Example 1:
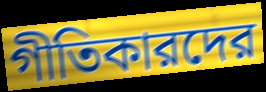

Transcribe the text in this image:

গীতিকারদের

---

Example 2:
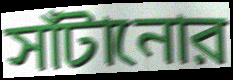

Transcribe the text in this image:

সাঁটানোর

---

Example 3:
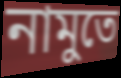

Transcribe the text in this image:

নামুতে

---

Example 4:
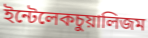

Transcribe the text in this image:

ইন্টেলেকচুয়ালিজম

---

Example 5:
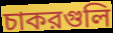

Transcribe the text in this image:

চাকরগুলি